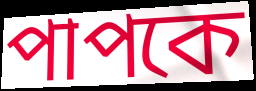
পাপকে